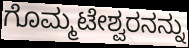
ಗೊಮ್ಮಟೇಶ್ವರನನ್ನು